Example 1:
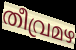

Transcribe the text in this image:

തീവ്രമഴ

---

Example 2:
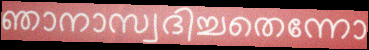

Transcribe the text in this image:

ഞാനാസ്വദിച്ചതെന്നോ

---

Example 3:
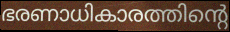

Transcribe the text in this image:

ഭരണാധികാരത്തിന്റെ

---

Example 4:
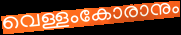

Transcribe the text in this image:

വെള്ളംകോരാനും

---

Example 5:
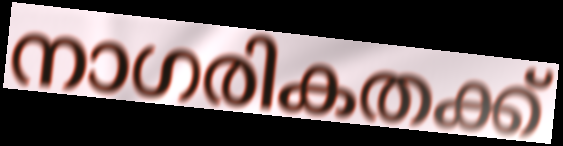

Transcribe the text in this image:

നാഗരികതക്ക്